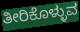
ತೀರಿಕೊಳ್ಳುವ